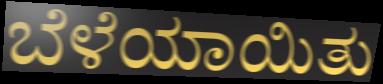
ಬೆಳೆಯಾಯಿತು